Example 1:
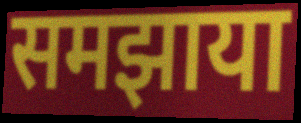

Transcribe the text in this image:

समझाया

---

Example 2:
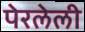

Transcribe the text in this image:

पेरलेली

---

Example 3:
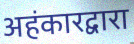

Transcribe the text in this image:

अहंकारद्वारा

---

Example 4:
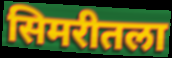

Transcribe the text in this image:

सिमरीतला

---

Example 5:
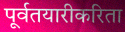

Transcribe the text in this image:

पूर्वतयारीकरिता